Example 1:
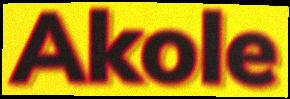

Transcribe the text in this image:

Akole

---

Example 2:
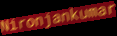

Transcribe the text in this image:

Nironjankumar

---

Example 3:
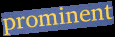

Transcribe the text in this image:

prominent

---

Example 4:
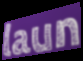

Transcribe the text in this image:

laun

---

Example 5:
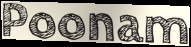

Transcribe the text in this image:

Poonam